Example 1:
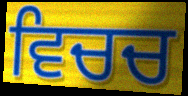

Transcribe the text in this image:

ਵਿਚਚ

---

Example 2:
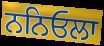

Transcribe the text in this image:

ਨਨਿਓਲਾ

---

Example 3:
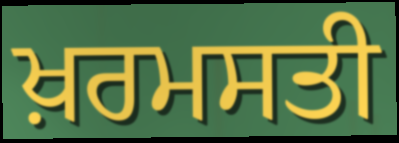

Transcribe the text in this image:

ਖ਼ਰਮਸਤੀ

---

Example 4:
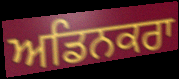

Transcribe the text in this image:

ਅਡਿਨਕਰਾ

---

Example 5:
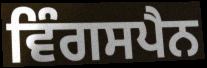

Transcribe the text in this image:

ਵਿੰਗਸਪੈਨ